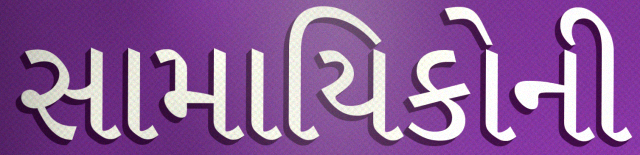
સામાયિકોની